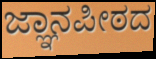
ಜ್ಞಾನಪೀಠದ